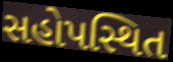
સહોપસ્થિત